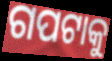
ଗପଟାକୁ